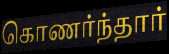
கொணர்ந்தார்